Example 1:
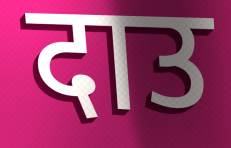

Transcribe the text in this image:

दाउ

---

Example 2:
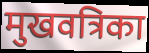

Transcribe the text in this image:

मुखवत्रिका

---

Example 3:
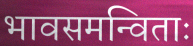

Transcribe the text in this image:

भावसमन्विताः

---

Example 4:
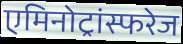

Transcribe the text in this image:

एमिनोट्रांस्फरेज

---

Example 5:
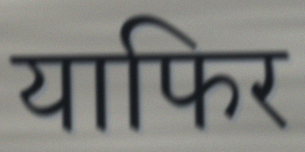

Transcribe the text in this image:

याफिर